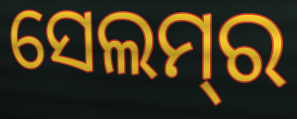
ସେଲମ୍‌ର